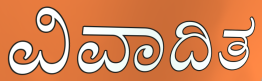
ವಿವಾದಿತ